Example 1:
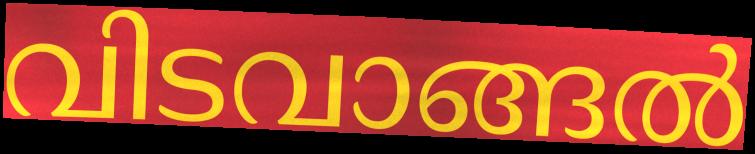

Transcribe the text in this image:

വിടവാങ്ങൽ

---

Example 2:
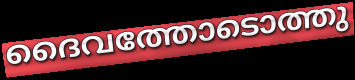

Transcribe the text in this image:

ദൈവത്തോടൊത്തു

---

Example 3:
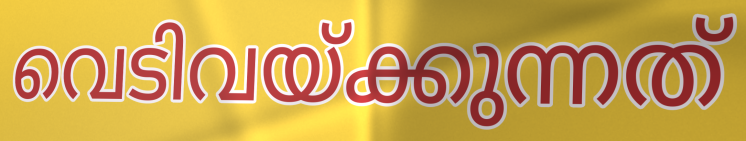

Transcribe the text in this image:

വെടിവയ്ക്കുന്നത്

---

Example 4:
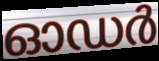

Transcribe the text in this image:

ഓഡർ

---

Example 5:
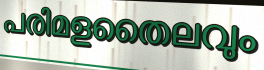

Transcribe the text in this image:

പരിമളതൈലവും